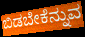
ಬಿಡಬೇಕೆನ್ನುವ